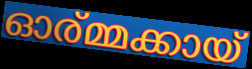
ഓര്മ്മക്കായ്